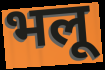
भलू